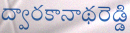
ద్వారకానాథరెడ్డి